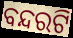
ବନ୍ଦରଟି